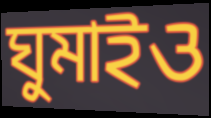
ঘুমাইও